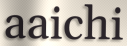
aaichi